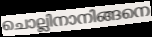
ചൊല്ലിനാനിങ്ങനെ